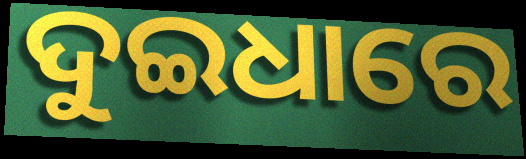
ଦୁଇଧାରେ